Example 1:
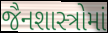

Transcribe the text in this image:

જૈનશાસ્ત્રોમાં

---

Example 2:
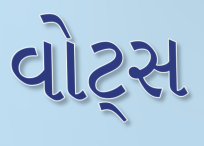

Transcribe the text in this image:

વોટ્સ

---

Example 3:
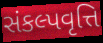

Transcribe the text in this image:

સંકલ્પવૃત્તિ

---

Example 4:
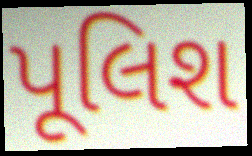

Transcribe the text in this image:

પૂલિશ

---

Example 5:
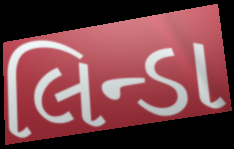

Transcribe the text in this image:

લિન્ડા